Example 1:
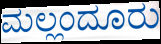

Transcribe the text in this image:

ಮಲ್ಲಂದೂರು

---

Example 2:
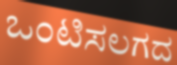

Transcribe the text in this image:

ಒಂಟಿಸಲಗದ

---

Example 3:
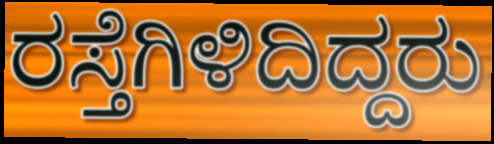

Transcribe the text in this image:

ರಸ್ತೆಗಿಳಿದಿದ್ದರು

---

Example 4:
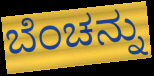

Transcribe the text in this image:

ಬೆಂಚನ್ನು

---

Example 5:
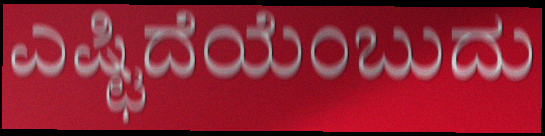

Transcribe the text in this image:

ಎಷ್ಟಿದೆಯೆಂಬುದು